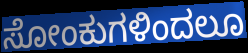
ಸೋಂಕುಗಳಿಂದಲೂ